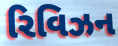
રિવિઝન